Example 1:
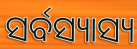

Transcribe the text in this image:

ସର୍ବସ୍ୟାସ୍ୟ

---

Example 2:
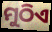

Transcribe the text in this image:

ମୁଠିଏ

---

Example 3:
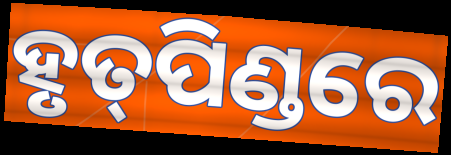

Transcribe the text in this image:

ହୃତ୍‌ପିଣ୍ଡରେ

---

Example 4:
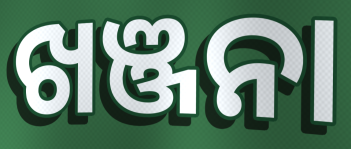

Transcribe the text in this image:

ଖଞ୍ଜନା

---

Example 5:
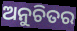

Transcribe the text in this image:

ଅନୁଚିତର